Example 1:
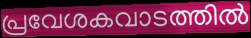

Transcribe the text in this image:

പ്രവേശകവാടത്തിൽ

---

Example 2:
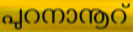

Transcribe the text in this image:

പുറനാനൂറ്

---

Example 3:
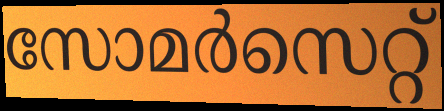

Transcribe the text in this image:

സോമർസെറ്റ്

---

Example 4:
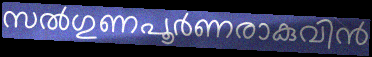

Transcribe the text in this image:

സൽഗുണപൂർണരാകുവിൻ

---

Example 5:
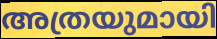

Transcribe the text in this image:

അത്രയുമായി